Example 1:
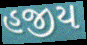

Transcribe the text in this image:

હજીય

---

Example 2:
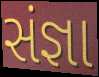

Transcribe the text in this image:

સંજ્ઞા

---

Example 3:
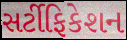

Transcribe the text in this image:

સર્ટીફિકેશન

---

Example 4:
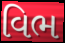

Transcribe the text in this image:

વિભ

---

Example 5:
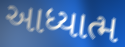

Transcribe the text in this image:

આધ્યાત્મ